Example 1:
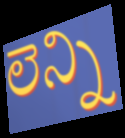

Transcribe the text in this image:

లెన్ని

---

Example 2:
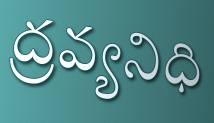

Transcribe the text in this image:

ద్రవ్యనిధి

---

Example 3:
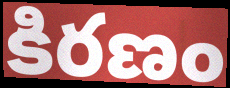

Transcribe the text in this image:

కిరణం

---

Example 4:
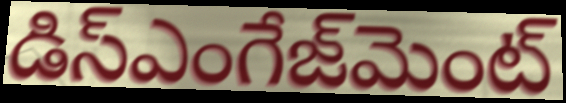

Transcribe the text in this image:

డిస్ఎంగేజ్‌మెంట్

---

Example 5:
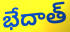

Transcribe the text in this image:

భేదాత్